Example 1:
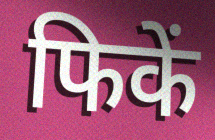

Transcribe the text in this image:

फिकें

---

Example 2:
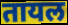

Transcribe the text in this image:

तायल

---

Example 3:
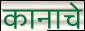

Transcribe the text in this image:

कानाचे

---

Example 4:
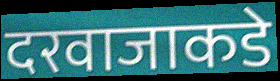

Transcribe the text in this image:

दरवाजाकडे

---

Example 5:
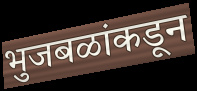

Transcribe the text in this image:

भुजबळांकडून